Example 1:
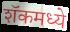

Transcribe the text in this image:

शॅकमध्ये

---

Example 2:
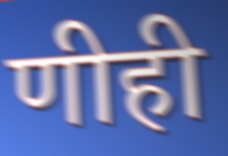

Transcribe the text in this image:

णीही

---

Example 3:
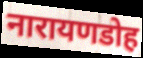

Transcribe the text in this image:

नारायणडोह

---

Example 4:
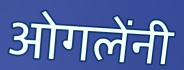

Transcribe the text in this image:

ओगलेंनी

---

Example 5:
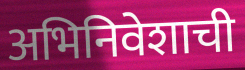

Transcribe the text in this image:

अभिनिवेशाची